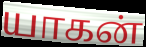
யாகன்